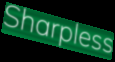
Sharpless